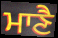
ਮਾਣੈ